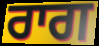
ਰਾਗ